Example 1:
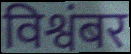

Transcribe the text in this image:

विश्वंबर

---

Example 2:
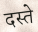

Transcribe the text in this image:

दस्ते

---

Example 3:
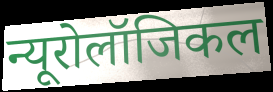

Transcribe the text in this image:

न्यूरोलॉजिकल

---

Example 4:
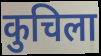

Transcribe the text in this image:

कुचिला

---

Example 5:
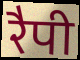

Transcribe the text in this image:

रैपी